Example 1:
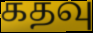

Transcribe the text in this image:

கதவு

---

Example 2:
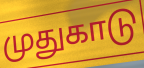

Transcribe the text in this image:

முதுகாடு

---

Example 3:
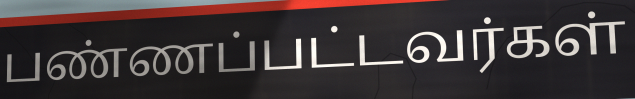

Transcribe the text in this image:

பண்ணப்பட்டவர்கள்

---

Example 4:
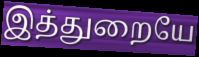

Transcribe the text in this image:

இத்துறையே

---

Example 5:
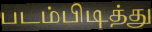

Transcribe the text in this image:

படம்பிடித்து